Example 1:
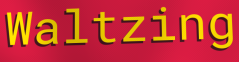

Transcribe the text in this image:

Waltzing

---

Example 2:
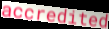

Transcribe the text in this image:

accredited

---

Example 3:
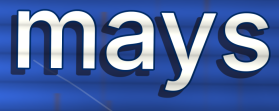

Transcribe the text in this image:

mays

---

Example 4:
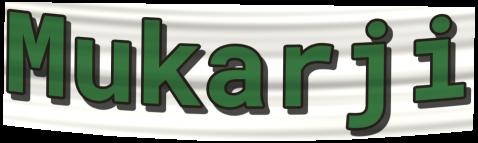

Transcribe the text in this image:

Mukarji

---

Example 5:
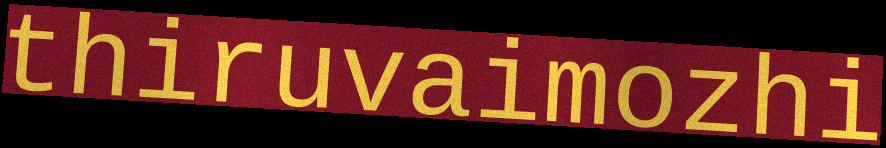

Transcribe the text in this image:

thiruvaimozhi